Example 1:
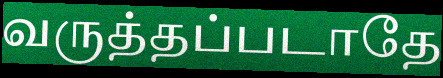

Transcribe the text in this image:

வருத்தப்படாதே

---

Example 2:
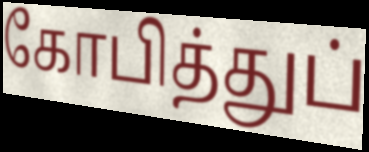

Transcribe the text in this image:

கோபித்துப்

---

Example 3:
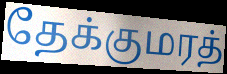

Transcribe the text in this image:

தேக்குமரத்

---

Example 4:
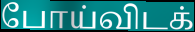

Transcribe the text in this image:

போய்விடக்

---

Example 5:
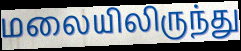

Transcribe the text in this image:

மலையிலிருந்து